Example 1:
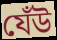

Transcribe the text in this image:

যেঁউ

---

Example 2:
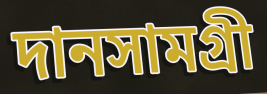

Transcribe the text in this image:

দানসামগ্রী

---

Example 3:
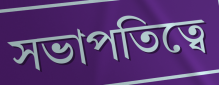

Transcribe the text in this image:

সভাপতিত্বে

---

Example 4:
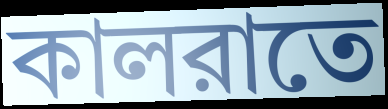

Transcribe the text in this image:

কালরাতে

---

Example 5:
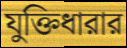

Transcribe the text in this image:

যুক্তিধারার